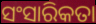
ସଂସାରିକତା